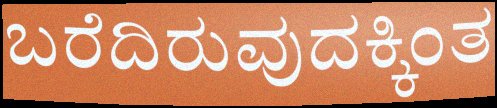
ಬರೆದಿರುವುದಕ್ಕಿಂತ